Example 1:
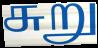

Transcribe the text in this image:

சுறு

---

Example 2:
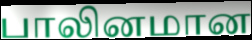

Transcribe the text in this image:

பாலினமான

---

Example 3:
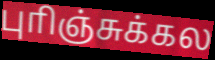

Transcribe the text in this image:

புரிஞ்சுக்கல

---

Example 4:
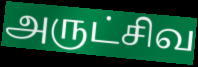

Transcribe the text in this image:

அருட்சிவ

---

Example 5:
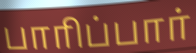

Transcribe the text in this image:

பாரிப்பார்